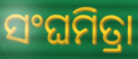
ସଂଘମିତ୍ରା